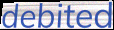
debited